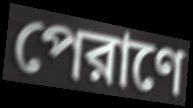
পেরাণে